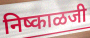
निष्काळजी